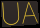
UA